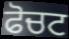
ਫੋਚਟ